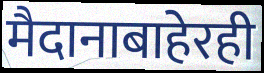
मैदानाबाहेरही